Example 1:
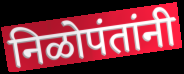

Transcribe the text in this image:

निळोपंतांनी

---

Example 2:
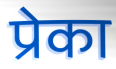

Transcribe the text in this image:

प्रेका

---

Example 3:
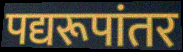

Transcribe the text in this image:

पद्यरूपांतर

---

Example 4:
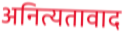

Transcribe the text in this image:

अनित्यतावाद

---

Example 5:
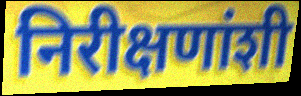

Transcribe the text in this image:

निरीक्षणांशी